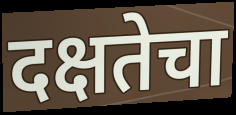
दक्षतेचा